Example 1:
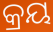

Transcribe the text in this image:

କ୍ରୟ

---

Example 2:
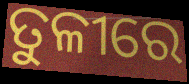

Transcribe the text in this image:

ତୁଳୀରେ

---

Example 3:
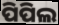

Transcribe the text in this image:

ପିପିଲ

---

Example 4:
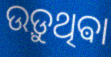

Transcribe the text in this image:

ଉଡ଼ୁଥିଵା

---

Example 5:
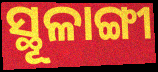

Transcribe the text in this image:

ସ୍ଥୂଳାଙ୍ଗୀ